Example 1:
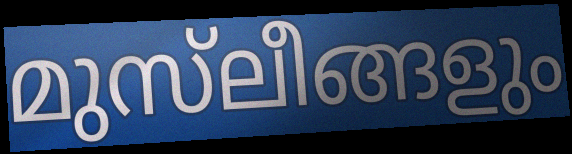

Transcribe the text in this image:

മുസ്‌ലീങ്ങളും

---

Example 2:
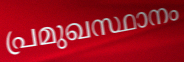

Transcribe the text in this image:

പ്രമുഖസ്ഥാനം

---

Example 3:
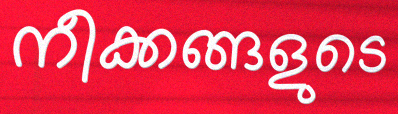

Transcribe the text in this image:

നീക്കങ്ങളുടെ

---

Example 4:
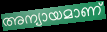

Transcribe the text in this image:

അന്യായമാണ്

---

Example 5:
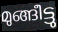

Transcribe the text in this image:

മുങ്ങീട്ടു